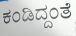
ಕಂಡಿದ್ದಂತೆ